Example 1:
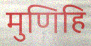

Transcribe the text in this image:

मुणिहि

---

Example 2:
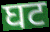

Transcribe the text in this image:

घट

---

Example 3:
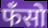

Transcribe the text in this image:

फँसो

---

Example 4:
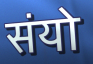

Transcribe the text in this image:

संयो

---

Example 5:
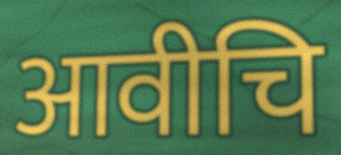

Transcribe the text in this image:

आवीचि